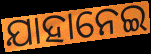
ଯାହାନେଇ